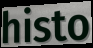
histo